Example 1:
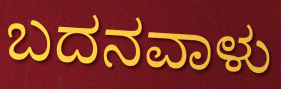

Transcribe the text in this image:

ಬದನವಾಳು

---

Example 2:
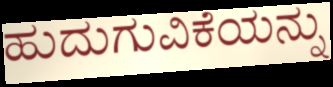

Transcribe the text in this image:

ಹುದುಗುವಿಕೆಯನ್ನು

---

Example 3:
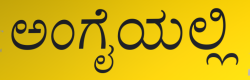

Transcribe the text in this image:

ಅಂಗೈಯಲ್ಲಿ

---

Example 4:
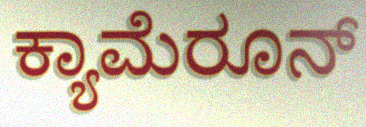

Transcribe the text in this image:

ಕ್ಯಾಮೆರೂನ್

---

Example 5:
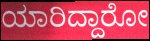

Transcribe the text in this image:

ಯಾರಿದ್ದಾರೋ